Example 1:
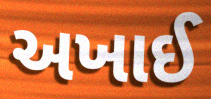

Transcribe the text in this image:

અખાઈ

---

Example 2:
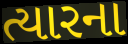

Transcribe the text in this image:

ત્યારના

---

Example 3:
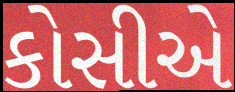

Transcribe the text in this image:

કોસીએ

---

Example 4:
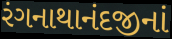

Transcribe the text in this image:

રંગનાથાનંદજીનાં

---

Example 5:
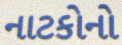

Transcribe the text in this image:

નાટકોનો